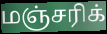
மஞ்சரிக்